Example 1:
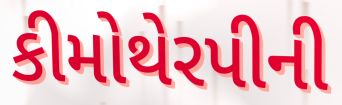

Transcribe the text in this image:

કીમોથેરપીની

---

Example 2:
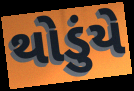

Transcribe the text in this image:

થોડુંયે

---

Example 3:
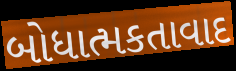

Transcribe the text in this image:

બોધાત્મકતાવાદ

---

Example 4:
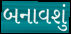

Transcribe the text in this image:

બનાવશું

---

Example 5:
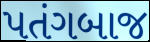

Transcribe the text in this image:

પતંગબાજ